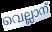
വെല്ലാന്